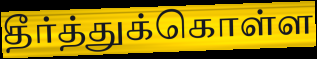
தீர்த்துக்கொள்ள